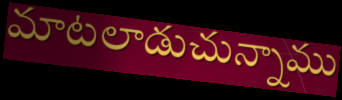
మాటలాడుచున్నాము